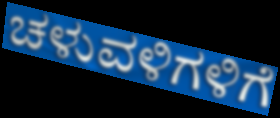
ಚಳುವಳಿಗಳಿಗೆ